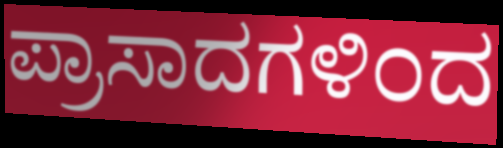
ಪ್ರಾಸಾದಗಳಿಂದ